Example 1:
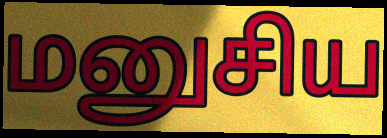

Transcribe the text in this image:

மனுசிய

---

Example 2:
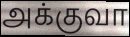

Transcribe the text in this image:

அக்குவா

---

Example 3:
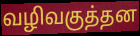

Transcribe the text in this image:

வழிவகுத்தன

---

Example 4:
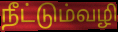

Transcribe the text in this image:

நீட்டும்வழி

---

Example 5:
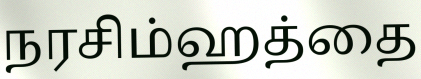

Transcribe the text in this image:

நரசிம்ஹத்தை